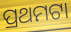
ପ୍ରଥମଟା